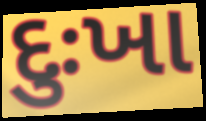
દુઃખા